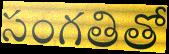
సంగతితో